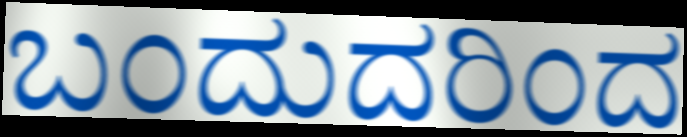
ಬಂದುದರಿಂದ